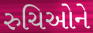
રુચિઓને